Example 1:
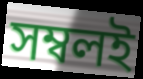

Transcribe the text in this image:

সম্বলই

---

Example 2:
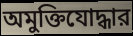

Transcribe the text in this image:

অমুক্তিযোদ্ধার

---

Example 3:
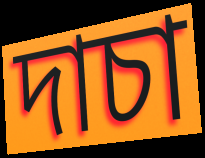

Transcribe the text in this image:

দাচা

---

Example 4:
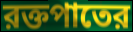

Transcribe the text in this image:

রক্তপাতের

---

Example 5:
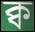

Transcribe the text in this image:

ক্ব